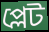
প্লেট